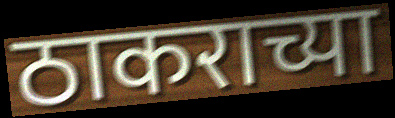
ठाकराच्या